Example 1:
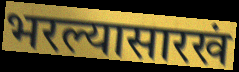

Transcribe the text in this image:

भरल्यासारखं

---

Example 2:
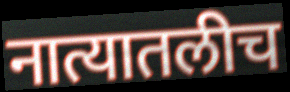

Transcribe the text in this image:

नात्यातलीच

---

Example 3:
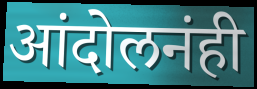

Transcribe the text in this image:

आंदोलनंही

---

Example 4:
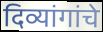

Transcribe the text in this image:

दिव्यांगांचे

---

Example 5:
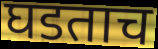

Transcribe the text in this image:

घडताच